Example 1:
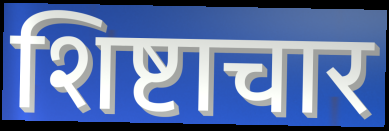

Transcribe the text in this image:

शिष्टाचार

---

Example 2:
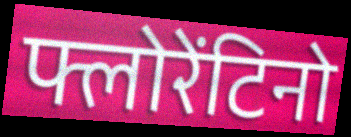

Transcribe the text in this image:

फ्लोरेंटिनो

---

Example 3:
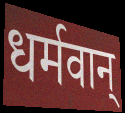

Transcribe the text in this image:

धर्मवान्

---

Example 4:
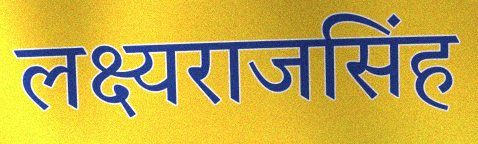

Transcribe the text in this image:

लक्ष्यराजसिंह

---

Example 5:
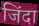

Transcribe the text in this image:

जिंदा